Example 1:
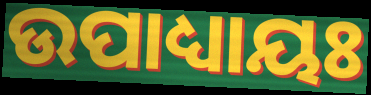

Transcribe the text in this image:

ଉପାଧ୍ୟାୟଃ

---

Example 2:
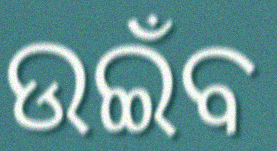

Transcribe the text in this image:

ଉଇଁବ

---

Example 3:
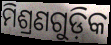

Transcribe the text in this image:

ମିଶ୍ରଣଗୁଡ଼ିକ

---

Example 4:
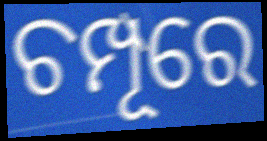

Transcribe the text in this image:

ଚମ୍ପୂରେ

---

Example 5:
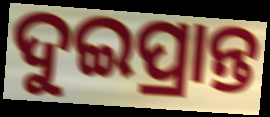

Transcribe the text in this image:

ଦୁଇପ୍ରାନ୍ତ